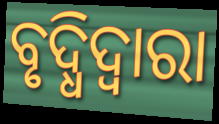
ବୃଦ୍ଧିଦ୍ୱାରା